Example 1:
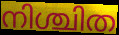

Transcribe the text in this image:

നിശ്ചിത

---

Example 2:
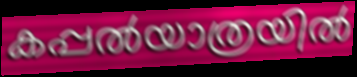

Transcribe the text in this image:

കപ്പൽയാത്രയിൽ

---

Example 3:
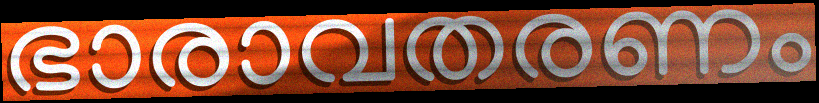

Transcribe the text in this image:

ഭാരാവതരണം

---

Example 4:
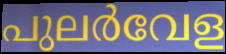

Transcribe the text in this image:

പുലർവേള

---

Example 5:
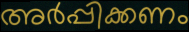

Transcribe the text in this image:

അർപ്പിക്കണം